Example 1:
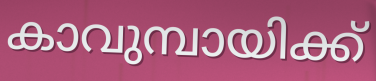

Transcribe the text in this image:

കാവുമ്പായിക്ക്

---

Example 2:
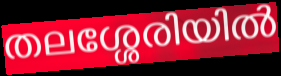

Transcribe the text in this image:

തലശ്ശേരിയിൽ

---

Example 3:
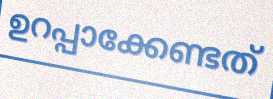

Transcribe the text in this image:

ഉറപ്പാക്കേണ്ടത്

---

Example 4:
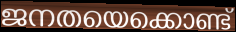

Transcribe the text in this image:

ജനതയെക്കൊണ്ട്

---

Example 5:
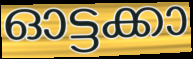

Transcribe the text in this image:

ഓട്ടക്കാ